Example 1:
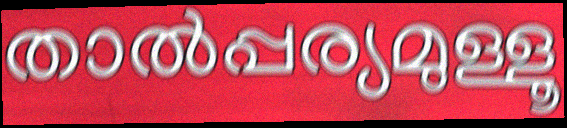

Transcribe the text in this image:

താൽപ്പര്യമുള്ളൂ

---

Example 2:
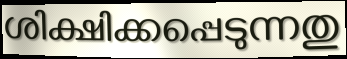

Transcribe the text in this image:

ശിക്ഷിക്കപ്പെടുന്നതു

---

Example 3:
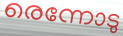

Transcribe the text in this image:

രെന്നോടു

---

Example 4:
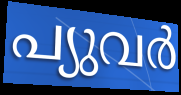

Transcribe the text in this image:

പ്യുവർ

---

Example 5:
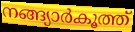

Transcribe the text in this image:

നങ്ങ്യാർകൂത്ത്